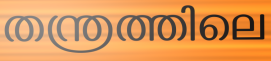
തന്ത്രത്തിലെ